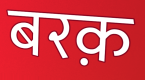
बरक़